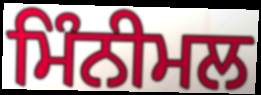
ਮਿੰਨੀਮਲ